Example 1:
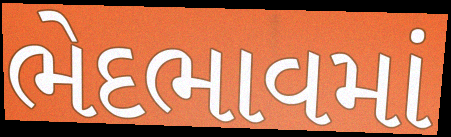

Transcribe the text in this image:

ભેદભાવમાં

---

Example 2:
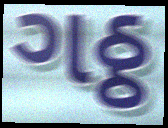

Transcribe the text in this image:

ગઠ્ઠ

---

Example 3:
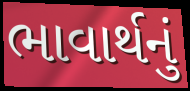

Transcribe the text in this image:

ભાવાર્થનું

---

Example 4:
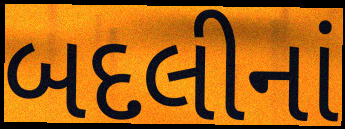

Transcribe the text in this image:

બદલીનાં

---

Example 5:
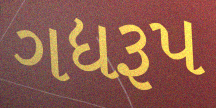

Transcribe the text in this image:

ગદ્યરૂપ